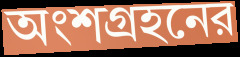
অংশগ্রহনের